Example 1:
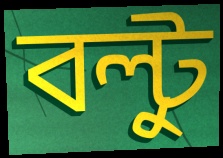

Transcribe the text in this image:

বল্টু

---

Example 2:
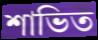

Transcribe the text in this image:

শাভিত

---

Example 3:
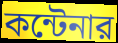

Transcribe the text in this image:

কন্টেনার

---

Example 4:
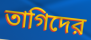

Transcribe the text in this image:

তাগিদের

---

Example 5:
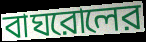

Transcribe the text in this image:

বাঘরোলের